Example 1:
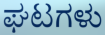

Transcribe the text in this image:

ಘಟಗಳು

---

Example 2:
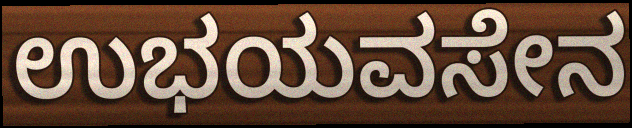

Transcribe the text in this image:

ಉಭಯವಸೇನ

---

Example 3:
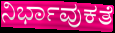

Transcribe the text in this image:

ನಿರ್ಭಾವುಕತೆ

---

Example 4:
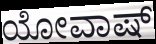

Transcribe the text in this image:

ಯೋವಾಷ್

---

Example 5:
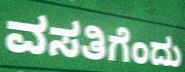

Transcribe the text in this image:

ವಸತಿಗೆಂದು